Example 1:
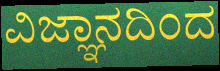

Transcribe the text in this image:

ವಿಜ್ಞಾನದಿಂದ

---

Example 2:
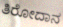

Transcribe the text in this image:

ತಿರೋದಾನ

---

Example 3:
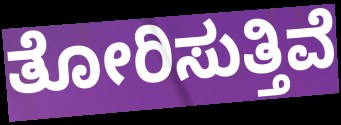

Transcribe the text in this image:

ತೋರಿಸುತ್ತಿವೆ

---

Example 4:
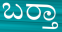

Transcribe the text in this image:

ಬರ‍್ತಾ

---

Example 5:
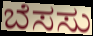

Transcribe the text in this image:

ಬೆಸಸು